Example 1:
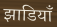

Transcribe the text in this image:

झाडियाँ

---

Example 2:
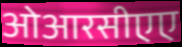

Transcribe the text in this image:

ओआरसीएए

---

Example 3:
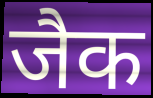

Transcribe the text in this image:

जैक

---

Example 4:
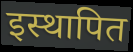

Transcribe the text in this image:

इस्थापित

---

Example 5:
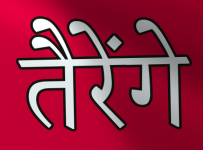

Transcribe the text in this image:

तैरेंगे